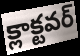
క్లాక్టవర్